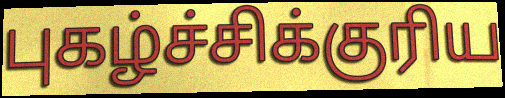
புகழ்ச்சிக்குரிய